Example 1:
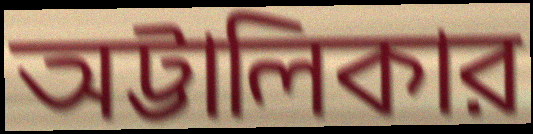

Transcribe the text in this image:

অট্টালিকার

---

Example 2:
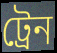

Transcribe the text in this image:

ট্রেন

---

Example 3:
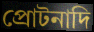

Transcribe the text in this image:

প্রোটনাদি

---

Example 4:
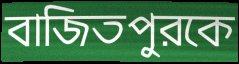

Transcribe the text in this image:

বাজিতপুরকে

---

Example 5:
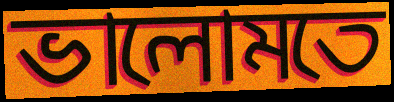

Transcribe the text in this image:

ভালোমতে